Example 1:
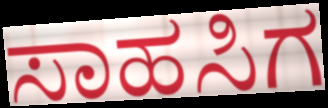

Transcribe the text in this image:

ಸಾಹಸಿಗ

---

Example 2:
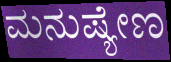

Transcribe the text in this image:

ಮನುಷ್ಯೇಣ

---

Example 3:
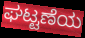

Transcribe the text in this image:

ಘಟ್ಟಣೆಯ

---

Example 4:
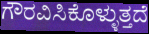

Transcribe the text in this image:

ಗೌರವಿಸಿಕೊಳ್ಳುತ್ತದೆ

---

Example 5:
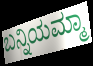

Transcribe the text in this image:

ಬನ್ನಿಯಮ್ಮಾ